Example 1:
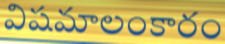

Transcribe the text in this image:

విషమాలంకారం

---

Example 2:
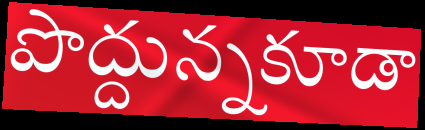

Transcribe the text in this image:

పొద్దున్నకూడా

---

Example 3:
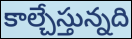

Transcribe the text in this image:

కాల్చేస్తున్నది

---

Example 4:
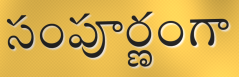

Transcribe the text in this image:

సంపూర్ణంగా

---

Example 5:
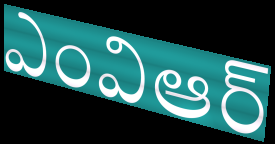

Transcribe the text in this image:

ఎంవిఆర్